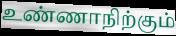
உண்ணாநிற்கும்